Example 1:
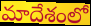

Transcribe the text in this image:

మాదేశంలో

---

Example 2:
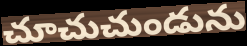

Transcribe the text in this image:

చూచుచుండును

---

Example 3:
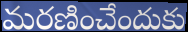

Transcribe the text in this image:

మరణించేందుకు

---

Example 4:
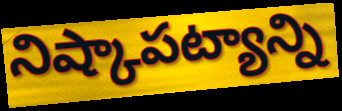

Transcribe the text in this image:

నిష్కాపట్యాన్ని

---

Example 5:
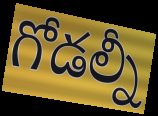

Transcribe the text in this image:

గోడల్నీ